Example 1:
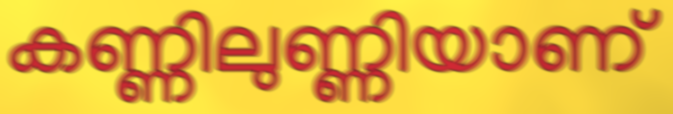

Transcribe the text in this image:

കണ്ണിലുണ്ണിയാണ്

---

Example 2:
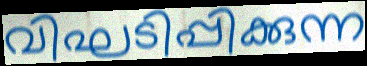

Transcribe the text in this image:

വിഘടിപ്പിക്കുന്ന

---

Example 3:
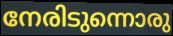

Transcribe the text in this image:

നേരിടുന്നൊരു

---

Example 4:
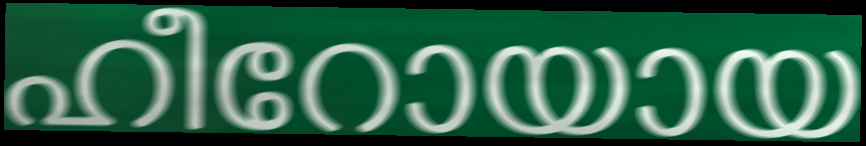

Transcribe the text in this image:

ഹീറോയായ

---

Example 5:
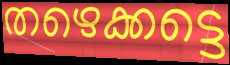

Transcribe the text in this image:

തഴെക്കട്ടെ